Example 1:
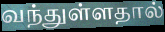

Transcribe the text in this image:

வந்துள்ளதால்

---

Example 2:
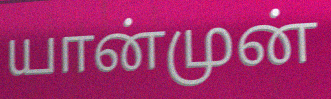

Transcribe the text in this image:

யான்முன்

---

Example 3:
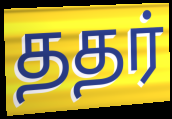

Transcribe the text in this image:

ததர்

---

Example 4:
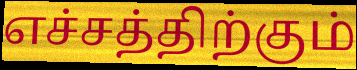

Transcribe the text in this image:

எச்சத்திற்கும்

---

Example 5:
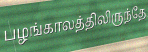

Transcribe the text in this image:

பழங்காலத்திலிருந்தே